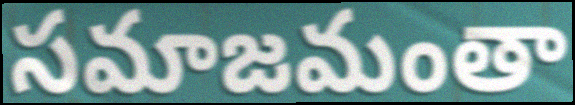
సమాజమంతా